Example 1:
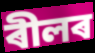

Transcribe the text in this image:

ৰীলৰ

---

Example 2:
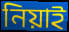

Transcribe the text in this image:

নিয়াই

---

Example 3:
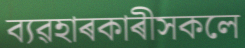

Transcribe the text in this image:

ব্যৱহাৰকাৰীসকলে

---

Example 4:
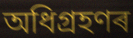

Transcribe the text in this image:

অধিগ্ৰহণৰ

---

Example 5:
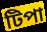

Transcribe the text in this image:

টিপা